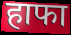
हाफा